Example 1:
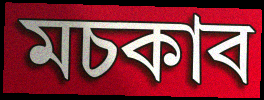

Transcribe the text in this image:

মচকাব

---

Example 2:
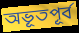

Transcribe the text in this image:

অভূতপূর্ব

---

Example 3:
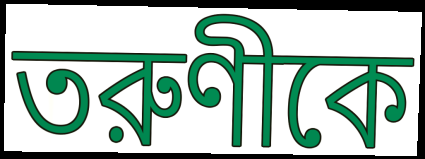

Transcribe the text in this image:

তরুণীকে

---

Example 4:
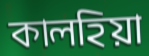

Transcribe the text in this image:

কালহিয়া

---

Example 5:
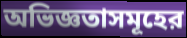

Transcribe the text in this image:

অভিজ্ঞতাসমূহের